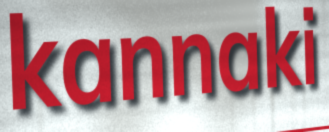
kannaki